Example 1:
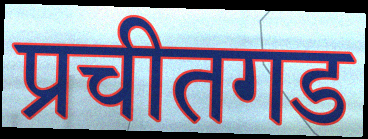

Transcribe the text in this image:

प्रचीतगड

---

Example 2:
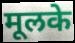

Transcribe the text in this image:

मूलके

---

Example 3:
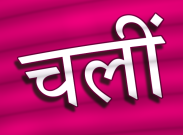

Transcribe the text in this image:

चलीं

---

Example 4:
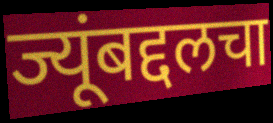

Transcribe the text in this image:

ज्यूंबद्दलचा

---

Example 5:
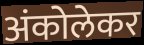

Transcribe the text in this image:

अंकोलेकर